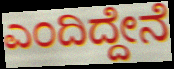
ಎಂದಿದ್ದೇನೆ